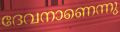
ദേവനാണെന്നു